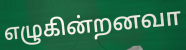
எழுகின்றனவா